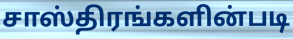
சாஸ்திரங்களின்படி